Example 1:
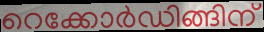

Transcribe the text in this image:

റെക്കോർഡിങ്ങിന്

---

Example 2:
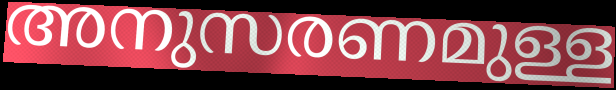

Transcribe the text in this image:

അനുസരണമുള്ള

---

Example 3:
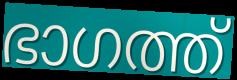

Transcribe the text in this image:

ഭാഗത്ത്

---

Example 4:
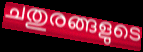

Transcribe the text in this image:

ചതുരങ്ങളുടെ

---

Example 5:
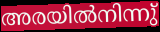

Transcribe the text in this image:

അരയിൽനിന്നു്